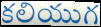
కలియుగ